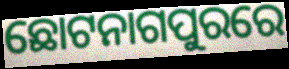
ଛୋଟନାଗପୁରରେ